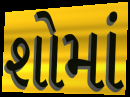
શોમાં